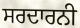
ਸਰਦਾਰਨੀ